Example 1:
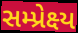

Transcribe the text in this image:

સમ્પ્રેક્ષ્ય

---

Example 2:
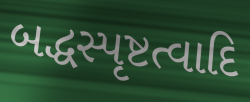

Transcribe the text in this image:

બદ્ધસ્પૃષ્ટત્વાદિ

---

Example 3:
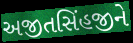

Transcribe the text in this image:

અજીતસિંહજીને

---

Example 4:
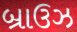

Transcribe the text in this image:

બ્રાઉઝ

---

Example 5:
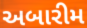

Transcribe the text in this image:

અબારીમ